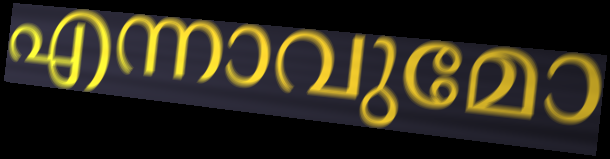
എന്നാവുമോ